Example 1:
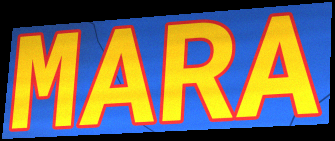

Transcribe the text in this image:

MARA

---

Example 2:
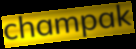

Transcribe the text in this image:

champak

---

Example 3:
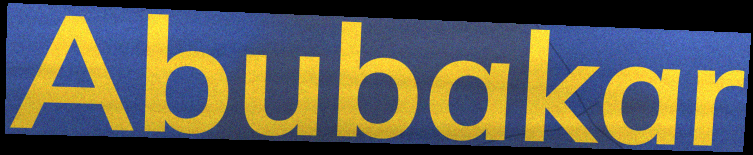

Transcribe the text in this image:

Abubakar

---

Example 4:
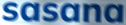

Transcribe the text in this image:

sasana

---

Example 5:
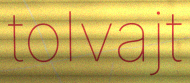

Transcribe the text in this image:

tolvajt